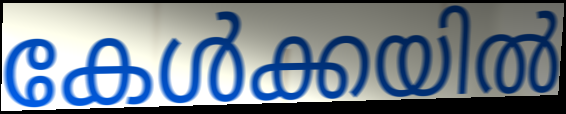
കേൾക്കയിൽ